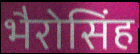
भैरोसिंह